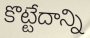
కొట్టేదాన్ని